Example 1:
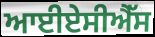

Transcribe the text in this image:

ਆਈਏਸੀਐੱਸ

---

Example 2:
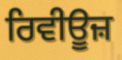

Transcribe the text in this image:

ਰਿਵੀਊਜ਼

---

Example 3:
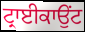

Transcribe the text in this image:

ਟ੍ਰਾਈਕਾਉਂਟ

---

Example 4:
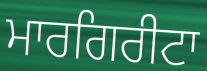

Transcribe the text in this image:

ਮਾਰਗਿਰੀਟਾ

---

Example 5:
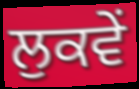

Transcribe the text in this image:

ਲੁਕਵੇਂ